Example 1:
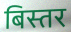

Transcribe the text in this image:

बिस्तर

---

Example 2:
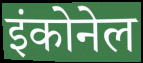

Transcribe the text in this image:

इंकोनेल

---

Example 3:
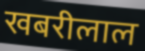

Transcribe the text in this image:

खबरीलाल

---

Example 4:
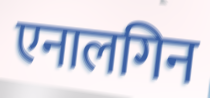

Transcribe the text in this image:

एनालगिन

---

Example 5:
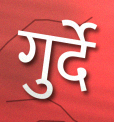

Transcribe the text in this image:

गुर्दे